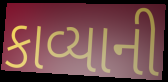
કાવ્યાની